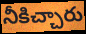
నీకిచ్చారు